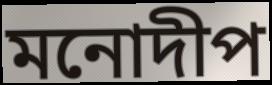
মনোদীপ